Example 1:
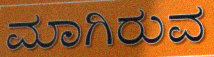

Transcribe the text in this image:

ಮಾಗಿರುವ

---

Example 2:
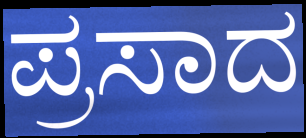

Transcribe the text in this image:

ಪ್ರಸಾದ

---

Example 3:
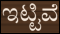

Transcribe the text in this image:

ಇಟ್ಟಿವೆ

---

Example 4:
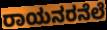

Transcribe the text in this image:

ರಾಯನರನೆಲೆ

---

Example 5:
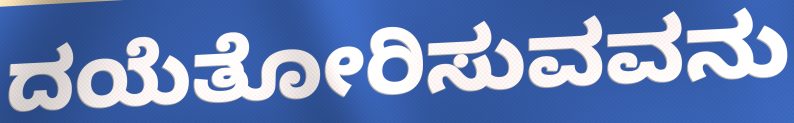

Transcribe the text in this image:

ದಯೆತೋರಿಸುವವನು